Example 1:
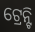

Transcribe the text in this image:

ଟ୍ରେନ୍ଟି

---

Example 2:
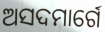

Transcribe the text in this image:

ଅସଦମାର୍ଗେ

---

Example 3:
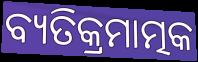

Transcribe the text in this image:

ବ୍ୟତିକ୍ରମାତ୍ମକ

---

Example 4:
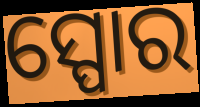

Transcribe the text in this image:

ସ୍ପୋର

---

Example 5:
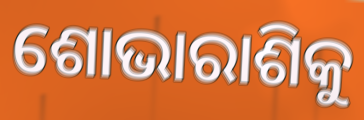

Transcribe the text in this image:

ଶୋଭାରାଶିକୁ